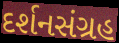
દર્શનસંગ્રહ